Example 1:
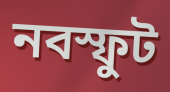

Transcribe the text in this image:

নবস্ফুট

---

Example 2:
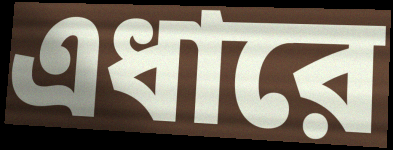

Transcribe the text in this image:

এধারে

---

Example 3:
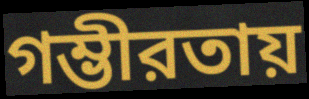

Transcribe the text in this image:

গম্ভীরতায়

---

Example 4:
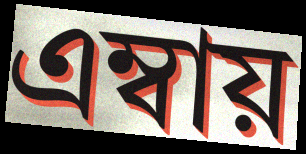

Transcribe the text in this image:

এম্বায়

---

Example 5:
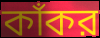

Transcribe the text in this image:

কাঁকর